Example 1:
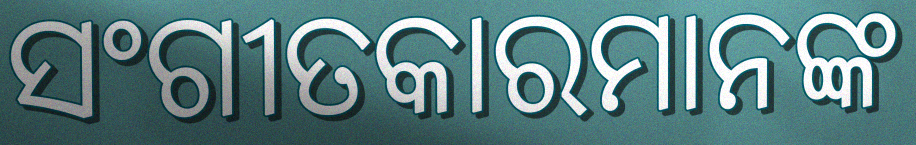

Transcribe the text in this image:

ସଂଗୀତକାରମାନଙ୍କ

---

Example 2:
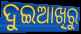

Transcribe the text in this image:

ଦୁଇଆଖିରୁ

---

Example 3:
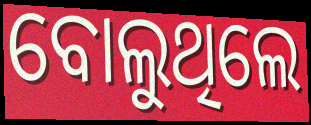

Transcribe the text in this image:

ବୋଲୁଥିଲେ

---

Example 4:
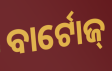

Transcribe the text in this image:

ବାର୍ଟୋଜ୍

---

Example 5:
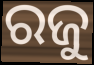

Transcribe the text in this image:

ରଜୁ